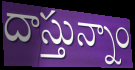
దాస్తున్నాం